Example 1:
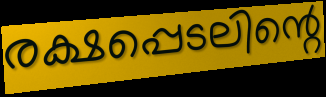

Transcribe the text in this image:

രക്ഷപ്പെടലിന്റെ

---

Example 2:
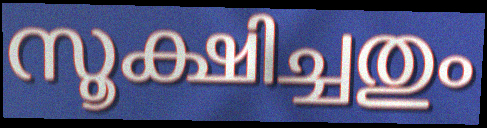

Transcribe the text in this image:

സൂക്ഷിച്ചതും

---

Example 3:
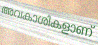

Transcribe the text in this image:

അവകാശികളാണ്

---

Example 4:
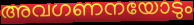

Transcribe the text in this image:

അവഗണനയോടും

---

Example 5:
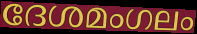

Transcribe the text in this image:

ദേശമംഗലം